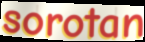
sorotan